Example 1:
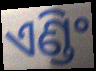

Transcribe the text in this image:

ଏଣ୍ଡିଂ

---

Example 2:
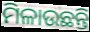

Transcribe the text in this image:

ମିଳାଉଛନ୍ତି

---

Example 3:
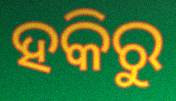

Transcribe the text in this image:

ହକିରୁ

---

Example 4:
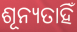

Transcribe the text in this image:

ଶୂନ୍ୟତାହିଁ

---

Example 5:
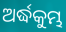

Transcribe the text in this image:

ଅର୍ଦ୍ଧକୁମ୍ଭ